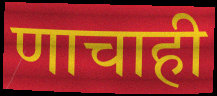
णाचाही